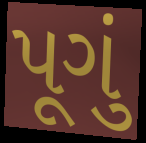
પૂગું